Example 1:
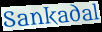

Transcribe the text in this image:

Sankadal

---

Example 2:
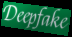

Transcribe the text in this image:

Deepfake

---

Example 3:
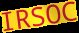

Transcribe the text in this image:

IRSOC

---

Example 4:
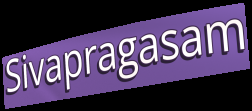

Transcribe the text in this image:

Sivapragasam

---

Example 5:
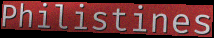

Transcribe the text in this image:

Philistines